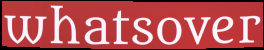
whatsover